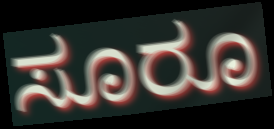
ಸೂರೂ